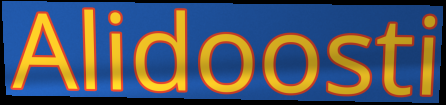
Alidoosti